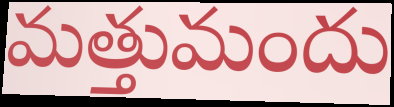
మత్తుమందు